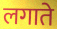
लगाते